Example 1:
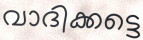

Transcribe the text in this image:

വാദിക്കട്ടെ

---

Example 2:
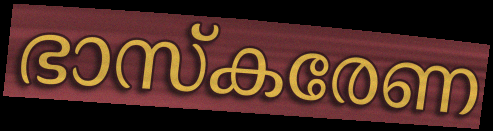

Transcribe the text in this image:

ഭാസ്കരേണ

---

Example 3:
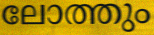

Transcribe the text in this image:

ലോത്തും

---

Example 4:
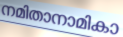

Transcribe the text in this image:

നമിതാനാമികാ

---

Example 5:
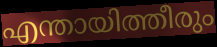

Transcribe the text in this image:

എന്തായിത്തീരും